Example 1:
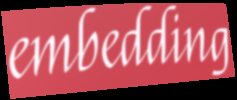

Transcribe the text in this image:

embedding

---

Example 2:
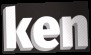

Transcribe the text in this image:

ken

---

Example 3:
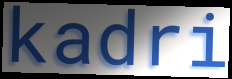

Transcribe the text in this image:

kadri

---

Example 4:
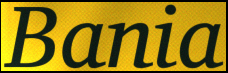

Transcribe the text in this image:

Bania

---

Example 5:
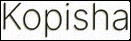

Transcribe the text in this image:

Kopisha